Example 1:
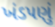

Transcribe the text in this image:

ખંડપણું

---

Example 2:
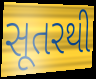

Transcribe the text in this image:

સૂતરથી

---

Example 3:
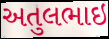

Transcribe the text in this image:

અતુલભાઇ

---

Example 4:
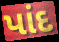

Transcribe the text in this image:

પાંદ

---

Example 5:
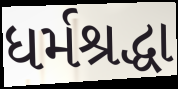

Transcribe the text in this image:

ધર્મશ્રદ્ધા